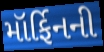
મૉર્ફિનની